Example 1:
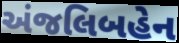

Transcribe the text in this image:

અંજલિબહેન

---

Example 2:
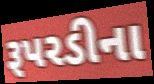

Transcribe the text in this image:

રૂપરડીના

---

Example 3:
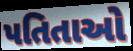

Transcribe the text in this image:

પતિતાઓ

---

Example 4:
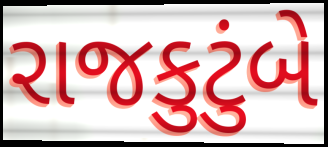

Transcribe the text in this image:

રાજકુટુંબે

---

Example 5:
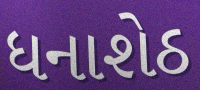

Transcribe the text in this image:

ધનાશેઠ